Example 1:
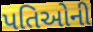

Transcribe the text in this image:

પતિઓની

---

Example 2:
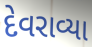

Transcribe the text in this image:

દેવરાવ્યા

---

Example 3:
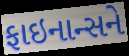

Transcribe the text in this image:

ફાઇનાન્સને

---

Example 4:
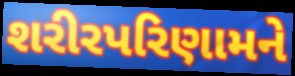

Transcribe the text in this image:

શરીરપરિણામને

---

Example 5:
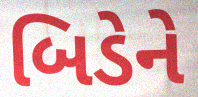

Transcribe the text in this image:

બિડેને